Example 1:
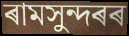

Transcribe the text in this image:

ৰামসুন্দৰৰ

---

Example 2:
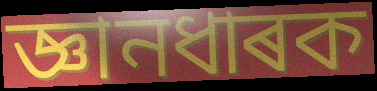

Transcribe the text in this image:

জ্ঞানধাৰক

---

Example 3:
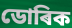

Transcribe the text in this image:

ডোৰিক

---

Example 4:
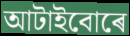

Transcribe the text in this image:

আটাইবোৰে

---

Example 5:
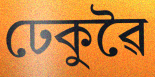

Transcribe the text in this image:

ঢেকুৱৈ